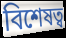
বিশেষত্ব